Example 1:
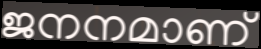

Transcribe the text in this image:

ജനനമാണ്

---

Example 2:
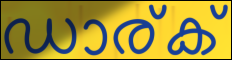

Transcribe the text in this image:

ഡാര്ക്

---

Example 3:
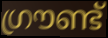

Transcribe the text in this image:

ഗ്രൗണ്ട്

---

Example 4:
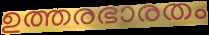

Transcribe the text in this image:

ഉത്തരഭാരതം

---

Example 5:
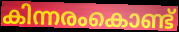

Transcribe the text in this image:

കിന്നരംകൊണ്ട്